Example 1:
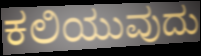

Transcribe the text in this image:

ಕಲಿಯುವುದು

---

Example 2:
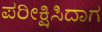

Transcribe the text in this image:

ಪರೀಕ್ಷಿಸಿದಾಗ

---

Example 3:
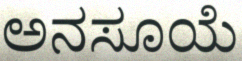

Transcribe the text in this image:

ಅನಸೂಯೆ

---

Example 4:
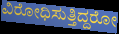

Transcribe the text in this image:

ವಿರೋಧಿಸುತ್ತಿದ್ದರೋ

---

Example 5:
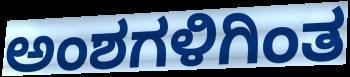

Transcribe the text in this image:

ಅಂಶಗಳಿಗಿಂತ